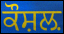
ਕੌਸ਼ਲ਼